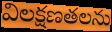
విలక్షణతలను